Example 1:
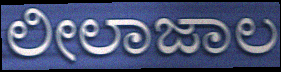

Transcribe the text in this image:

ಲೀಲಾಜಾಲ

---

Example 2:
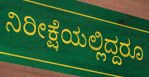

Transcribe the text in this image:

ನಿರೀಕ್ಷೆಯಲ್ಲಿದ್ದರೂ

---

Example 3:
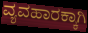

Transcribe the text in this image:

ವ್ಯವಹಾರಕ್ಕಾಗಿ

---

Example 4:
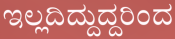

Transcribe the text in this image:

ಇಲ್ಲದಿದ್ದುದ್ದರಿಂದ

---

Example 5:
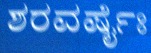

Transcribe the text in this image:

ಶರವರ್ಷೈಃ